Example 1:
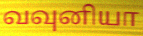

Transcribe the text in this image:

வவுனியா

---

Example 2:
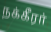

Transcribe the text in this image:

நக்கீரர்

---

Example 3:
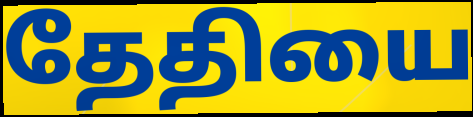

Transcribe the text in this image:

தேதியை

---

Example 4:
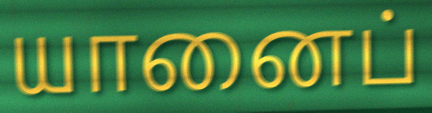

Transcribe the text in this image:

யானைப்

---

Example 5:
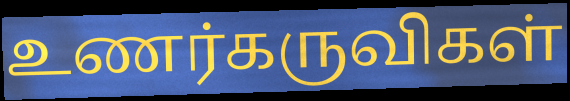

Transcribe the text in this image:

உணர்கருவிகள்